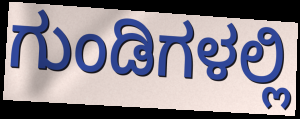
ಗುಂಡಿಗಳಲ್ಲಿ